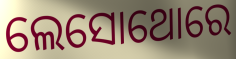
ଲେସୋଥୋରେ